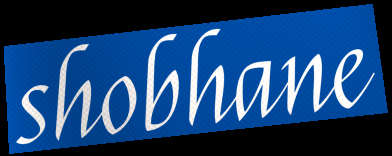
shobhane